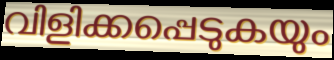
വിളിക്കപ്പെടുകയും